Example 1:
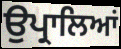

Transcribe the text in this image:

ਉਪ੍ਰਾਲਿਆਂ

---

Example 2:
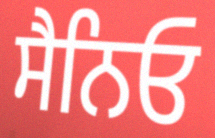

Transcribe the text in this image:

ਸੈਨਿਓ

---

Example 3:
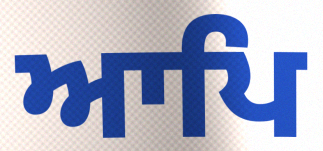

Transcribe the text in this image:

ਆਪਿ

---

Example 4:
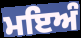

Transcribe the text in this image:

ਮਇਅੰ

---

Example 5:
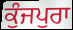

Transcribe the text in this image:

ਕੁੰਜਪੁਰਾ